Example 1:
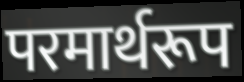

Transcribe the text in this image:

परमार्थरूप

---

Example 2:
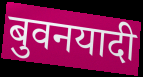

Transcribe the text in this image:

बुवनयादी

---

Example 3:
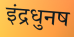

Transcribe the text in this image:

इंद्रधुनष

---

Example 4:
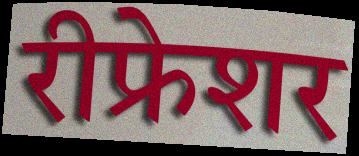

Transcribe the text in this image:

रीफ्रेशर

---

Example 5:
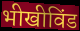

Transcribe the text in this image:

भीखीविंड